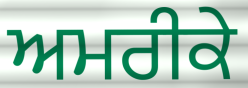
ਅਮਰੀਕੇ